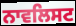
ਨਾਵਲਿਸਟ